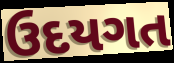
ઉદયગત